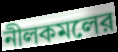
নীলকমলের